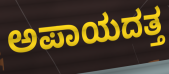
ಅಪಾಯದತ್ತ